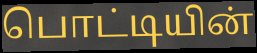
பொட்டியின்